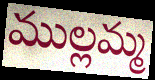
ముల్లమ్మ